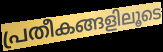
പ്രതീകങ്ങളിലൂടെ